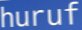
huruf